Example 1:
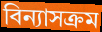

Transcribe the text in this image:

বিন্যাসক্রম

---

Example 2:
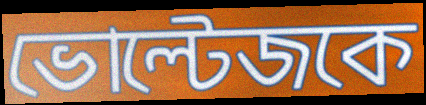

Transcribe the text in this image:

ভোল্টেজকে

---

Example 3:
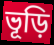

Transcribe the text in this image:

ভূড়ি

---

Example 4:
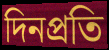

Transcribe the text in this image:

দিনপ্রতি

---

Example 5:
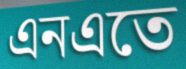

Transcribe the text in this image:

এনএতে